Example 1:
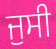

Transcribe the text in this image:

ਜੁਸੀ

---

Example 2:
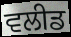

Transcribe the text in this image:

ਵਲੀਡ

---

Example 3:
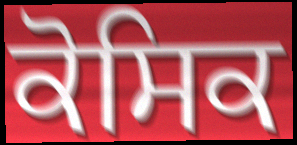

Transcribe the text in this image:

ਕੋਸਿਕ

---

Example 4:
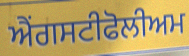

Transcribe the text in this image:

ਐਂਗਸਟੀਫੋਲੀਅਮ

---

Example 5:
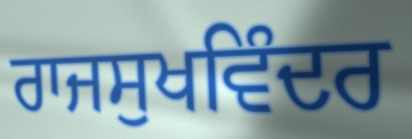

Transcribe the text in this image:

ਰਾਜਸੁਖਵਿੰਦਰ